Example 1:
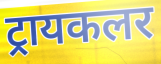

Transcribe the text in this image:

ट्रायकलर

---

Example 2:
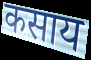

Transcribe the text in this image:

कसाय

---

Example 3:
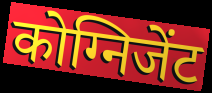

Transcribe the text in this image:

कोग्निजेंट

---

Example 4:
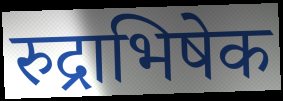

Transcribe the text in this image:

रुद्राभिषेक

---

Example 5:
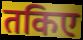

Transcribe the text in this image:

तकिए